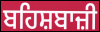
ਬਹਿਸ਼ਬਾਜ਼ੀ